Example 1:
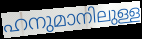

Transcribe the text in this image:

ഹനുമാനിലുള്ള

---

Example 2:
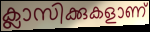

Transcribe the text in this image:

ക്ലാസിക്കുകളാണ്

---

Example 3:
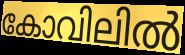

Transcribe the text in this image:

കോവിലിൽ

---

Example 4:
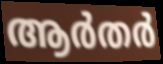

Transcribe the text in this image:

ആർതർ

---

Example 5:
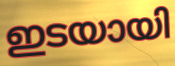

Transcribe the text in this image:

ഇടയായി